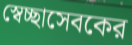
স্বেচ্ছাসেবকের